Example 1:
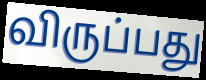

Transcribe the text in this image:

விருப்பது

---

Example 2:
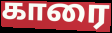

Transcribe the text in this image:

காரை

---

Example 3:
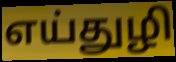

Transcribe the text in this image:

எய்துழி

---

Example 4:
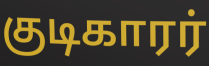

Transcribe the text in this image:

குடிகாரர்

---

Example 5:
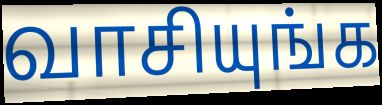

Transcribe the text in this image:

வாசியுங்க